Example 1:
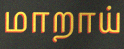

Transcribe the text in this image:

மாறாய்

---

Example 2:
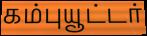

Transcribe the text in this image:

கம்புயூட்டர்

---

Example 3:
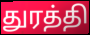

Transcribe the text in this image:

துரத்தி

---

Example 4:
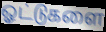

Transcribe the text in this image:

ஓட்டுகளை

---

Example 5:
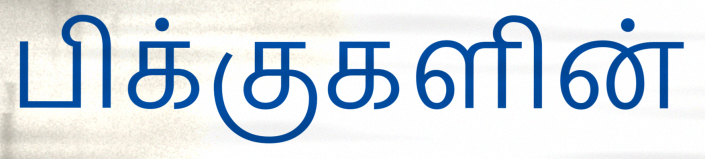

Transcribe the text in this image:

பிக்குகளின்